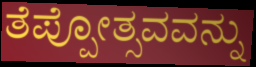
ತೆಪ್ಪೋತ್ಸವವನ್ನು